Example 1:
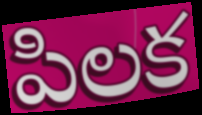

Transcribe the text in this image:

పిలక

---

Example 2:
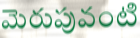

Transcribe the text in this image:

మెరుపువంటి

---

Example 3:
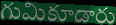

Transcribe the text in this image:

గుమికూడారు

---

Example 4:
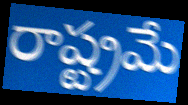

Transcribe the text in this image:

రాష్ట్రమే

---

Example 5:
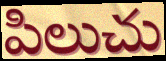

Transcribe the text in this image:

పిలుచు